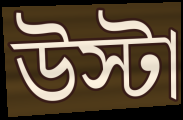
উস্টা